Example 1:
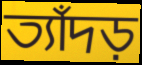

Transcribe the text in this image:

ত্যাঁদড়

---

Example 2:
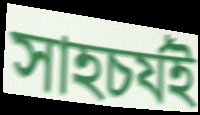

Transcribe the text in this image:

সাহচর্যই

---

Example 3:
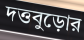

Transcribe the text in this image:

দত্তবুড়োর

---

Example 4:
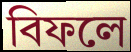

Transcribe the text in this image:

বিফলে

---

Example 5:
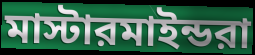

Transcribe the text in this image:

মাস্টারমাইন্ডরা